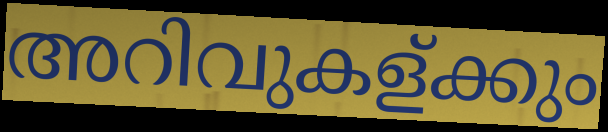
അറിവുകള്ക്കും